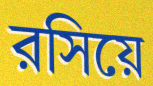
রসিয়ে